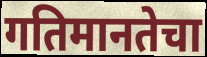
गतिमानतेचा